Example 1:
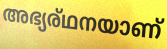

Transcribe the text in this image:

അഭ്യര്ഥനയാണ്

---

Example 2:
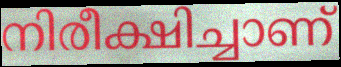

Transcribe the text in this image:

നിരീക്ഷിച്ചാണ്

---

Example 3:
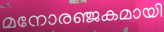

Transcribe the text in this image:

മനോരഞ്ജകമായി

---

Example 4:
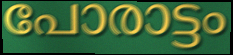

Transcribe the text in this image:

പോരാട്ടം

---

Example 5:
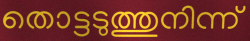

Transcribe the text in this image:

തൊട്ടടുത്തുനിന്ന്